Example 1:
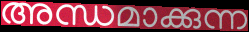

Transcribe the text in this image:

അന്ധമാക്കുന്ന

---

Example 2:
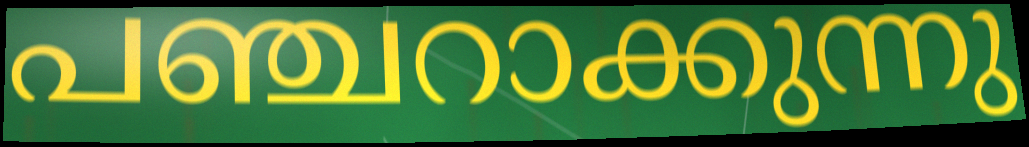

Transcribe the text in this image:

പഞ്ചറാക്കുന്നു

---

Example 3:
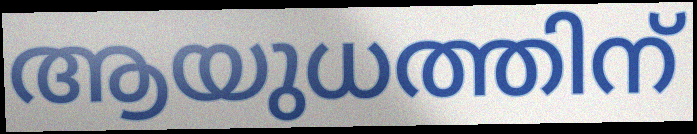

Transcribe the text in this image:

ആയുധത്തിന്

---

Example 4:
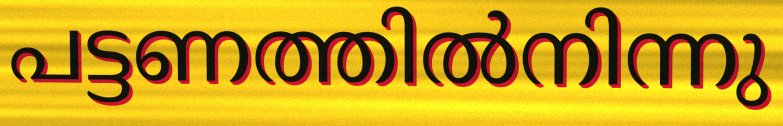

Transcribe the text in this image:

പട്ടണത്തിൽനിന്നു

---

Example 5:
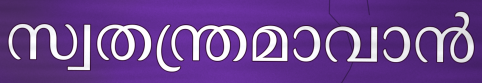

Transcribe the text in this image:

സ്വതന്ത്രമാവാൻ